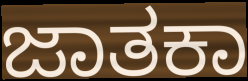
ಜಾತಕಾ